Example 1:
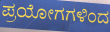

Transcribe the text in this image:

ಪ್ರಯೋಗಗಳಿಂದ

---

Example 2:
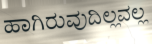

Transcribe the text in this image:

ಹಾಗಿರುವುದಿಲ್ಲವಲ್ಲ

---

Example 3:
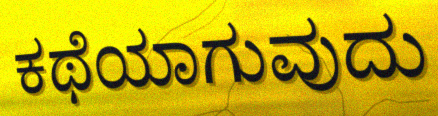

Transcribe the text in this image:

ಕಥೆಯಾಗುವುದು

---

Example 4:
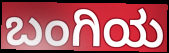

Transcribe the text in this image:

ಬಂಗಿಯ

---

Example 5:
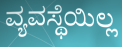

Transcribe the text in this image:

ವ್ಯವಸ್ಥೆಯಿಲ್ಲ